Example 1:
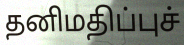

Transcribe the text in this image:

தனிமதிப்புச்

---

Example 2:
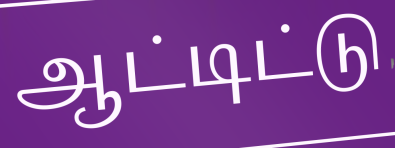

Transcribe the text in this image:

ஆட்டிட்டு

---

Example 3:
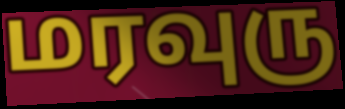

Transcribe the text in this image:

மரவுரு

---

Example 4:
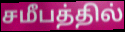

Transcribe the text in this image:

சமீபத்தில்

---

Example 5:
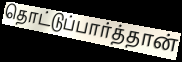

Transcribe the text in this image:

தொட்டுப்பார்த்தான்